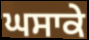
ਘਸਾਕੇ